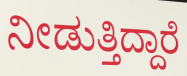
ನೀಡುತ್ತಿದ್ದಾರೆ